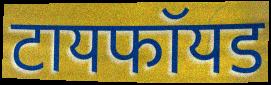
टायफॉयड